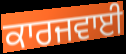
ਕਾਰਜਵਾਈ